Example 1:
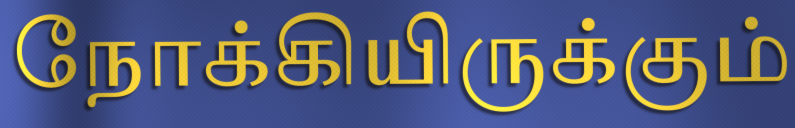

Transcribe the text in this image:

நோக்கியிருக்கும்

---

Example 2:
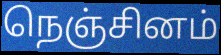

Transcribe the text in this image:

நெஞ்சினம்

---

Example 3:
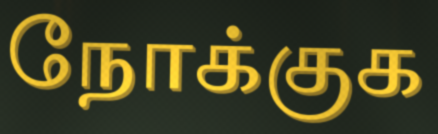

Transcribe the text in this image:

நோக்குக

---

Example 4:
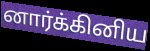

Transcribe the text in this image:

னார்க்கினிய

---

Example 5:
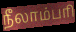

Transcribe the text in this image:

நீலாம்பரி